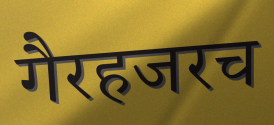
गैरहजरच